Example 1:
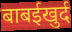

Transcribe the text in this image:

बाबईखुर्द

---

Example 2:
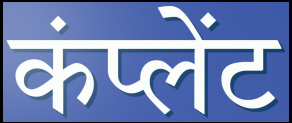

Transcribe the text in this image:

कंप्लेंट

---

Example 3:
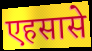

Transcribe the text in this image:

एहसासे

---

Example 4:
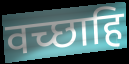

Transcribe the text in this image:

वच्छाहि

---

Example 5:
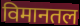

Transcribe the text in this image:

विमानतल